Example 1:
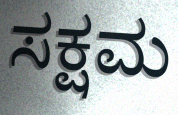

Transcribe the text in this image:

ಸಕ್ಷಮ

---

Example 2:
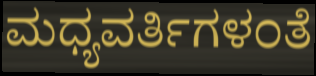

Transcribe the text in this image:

ಮಧ್ಯವರ್ತಿಗಳಂತೆ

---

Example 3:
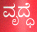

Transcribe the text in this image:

ವೃದ್ಧೆ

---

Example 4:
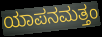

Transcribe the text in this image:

ಯಾಪನಮತ್ತಂ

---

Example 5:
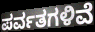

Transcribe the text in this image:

ಪರ್ವತಗಳಿವೆ